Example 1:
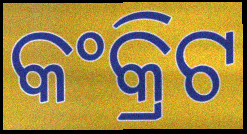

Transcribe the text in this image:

କଂକ୍ରିଟ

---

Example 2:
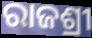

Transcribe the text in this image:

ରାଜଶ୍ରୀ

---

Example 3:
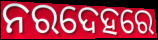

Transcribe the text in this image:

ନରଦେହରେ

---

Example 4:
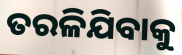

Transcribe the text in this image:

ତରଳିଯିବାକୁ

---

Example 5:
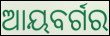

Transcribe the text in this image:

ଆୟବର୍ଗର